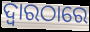
ଦ୍ୱାରଠାରେ